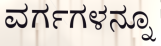
ವರ್ಗಗಳನ್ನೂ